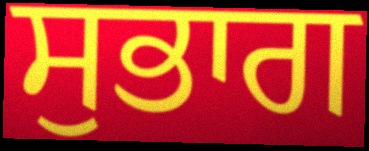
ਸੁਭਾਗ